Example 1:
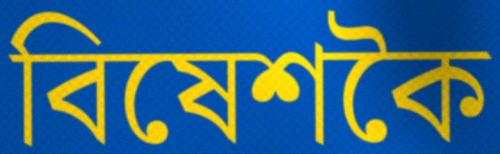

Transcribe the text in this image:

বিষেশকৈ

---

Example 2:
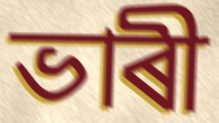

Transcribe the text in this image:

ভাৰী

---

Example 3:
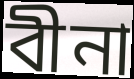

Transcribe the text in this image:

বীনা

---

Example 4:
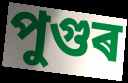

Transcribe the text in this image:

পুগুৰ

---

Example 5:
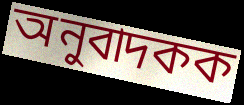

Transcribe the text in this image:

অনুবাদকক